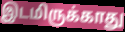
இடமிருக்காது